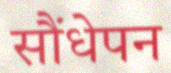
सौंधेपन